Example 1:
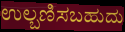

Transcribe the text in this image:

ಉಲ್ಬಣಿಸಬಹುದು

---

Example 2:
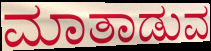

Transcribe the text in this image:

ಮಾತಾಡುವ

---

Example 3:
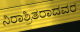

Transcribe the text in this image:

ನಿರಾಶ್ರಿತರಾದವರ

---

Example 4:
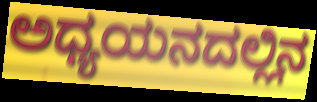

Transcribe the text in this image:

ಅಧ್ಯಯನದಲ್ಲಿನ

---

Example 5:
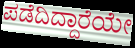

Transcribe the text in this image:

ಪಡೆದಿದ್ದಾರೆಯೇ